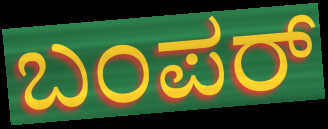
ಬಂಪರ್